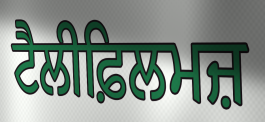
ਟੈਲੀਫ਼ਿਲਮਜ਼